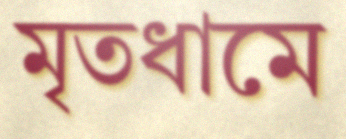
মৃতধামে